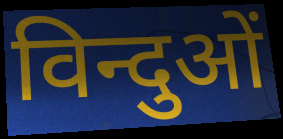
विन्दुओं